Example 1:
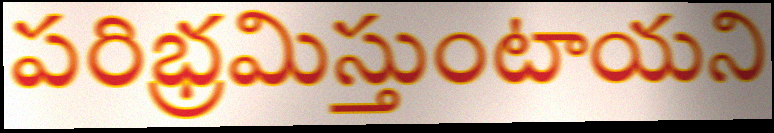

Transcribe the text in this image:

పరిభ్రమిస్తుంటాయని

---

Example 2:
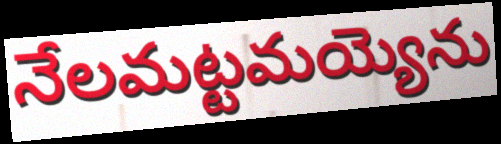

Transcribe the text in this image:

నేలమట్టమయ్యెను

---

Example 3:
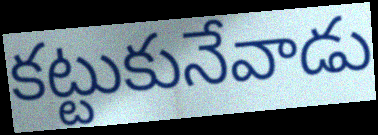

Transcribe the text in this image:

కట్టుకునేవాడు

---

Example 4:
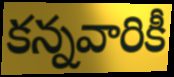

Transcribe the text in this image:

కన్నవారికీ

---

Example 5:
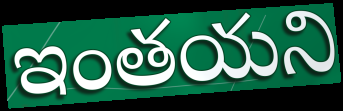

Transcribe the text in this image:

ఇంతయని